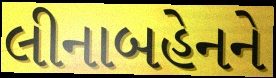
લીનાબહેનને